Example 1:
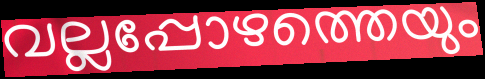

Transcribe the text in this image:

വല്ലപ്പോഴത്തെയും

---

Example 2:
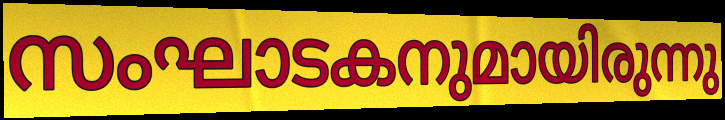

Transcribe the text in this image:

സംഘാടകനുമായിരുന്നു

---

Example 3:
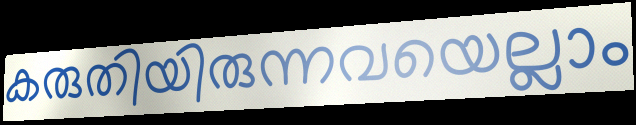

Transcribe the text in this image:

കരുതിയിരുന്നവയെല്ലാം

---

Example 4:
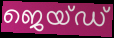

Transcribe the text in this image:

ജെയ്ഡ്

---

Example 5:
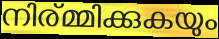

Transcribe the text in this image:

നിര്മ്മിക്കുകയും